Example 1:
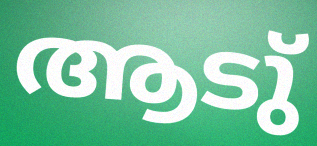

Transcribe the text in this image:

ആടു്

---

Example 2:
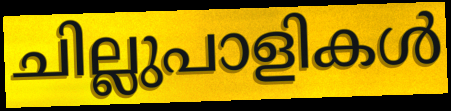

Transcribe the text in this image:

ചില്ലുപാളികൾ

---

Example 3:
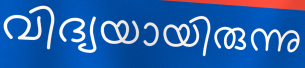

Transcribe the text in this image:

വിദ്യയായിരുന്നു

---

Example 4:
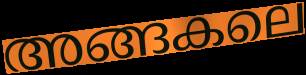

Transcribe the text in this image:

അങ്ങകലെ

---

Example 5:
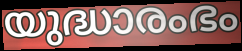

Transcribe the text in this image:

യുദ്ധാരംഭം